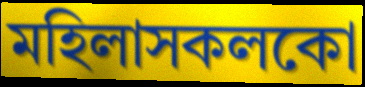
মহিলাসকলকো